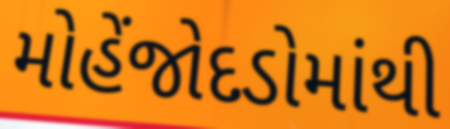
મોહેંજોદડોમાંથી